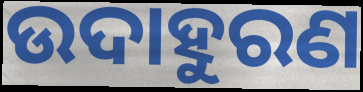
ଉଦାହୁରଣ